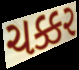
ચક્કર